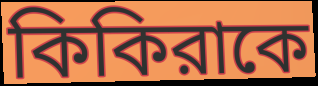
কিকিরাকে